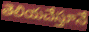
తెలియచేస్తూనే